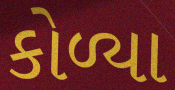
કોળ્યા